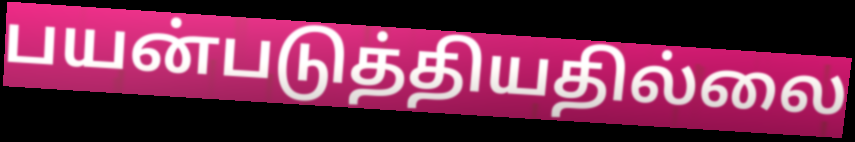
பயன்படுத்தியதில்லை